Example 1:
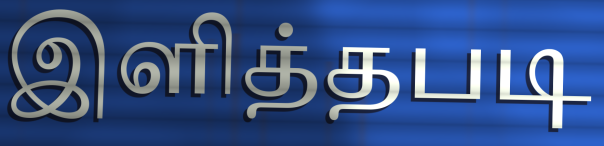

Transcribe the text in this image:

இளித்தபடி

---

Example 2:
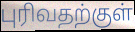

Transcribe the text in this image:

புரிவதற்குள்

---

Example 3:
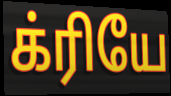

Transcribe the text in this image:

க்ரியே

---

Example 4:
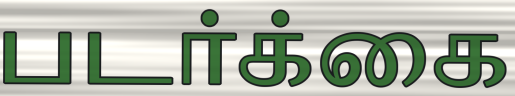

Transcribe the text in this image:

படர்க்கை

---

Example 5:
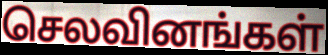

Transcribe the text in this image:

செலவினங்கள்